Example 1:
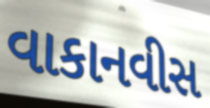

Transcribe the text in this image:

વાકાનવીસ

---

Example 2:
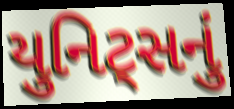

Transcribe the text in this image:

યુનિટ્સનું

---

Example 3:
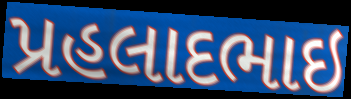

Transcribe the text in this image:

પ્રહલાદભાઇ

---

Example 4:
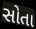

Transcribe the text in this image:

સોતા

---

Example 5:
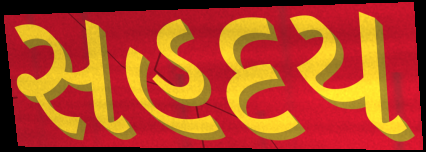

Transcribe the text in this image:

સહદય